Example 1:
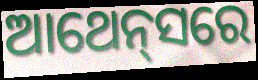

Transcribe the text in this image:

ଆଥେନ୍‍ସରେ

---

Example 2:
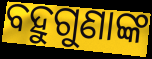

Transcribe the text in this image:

ବହୁଗୁଣାଙ୍କ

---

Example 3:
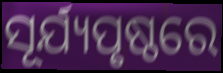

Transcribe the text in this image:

ସୂର୍ଯ୍ୟପୃଷ୍ଠରେ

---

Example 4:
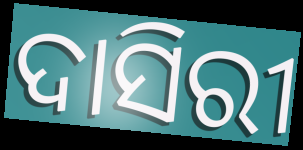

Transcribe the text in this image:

ଦାସିରୀ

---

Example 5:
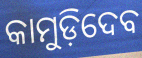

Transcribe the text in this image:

କାମୁଡ଼ିଦେବ